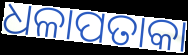
ଧଳାପତାକା